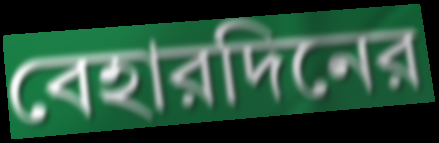
বেহারদিনের